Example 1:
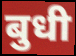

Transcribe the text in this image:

बुधी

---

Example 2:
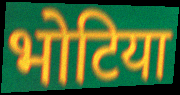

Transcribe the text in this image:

भोटिया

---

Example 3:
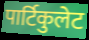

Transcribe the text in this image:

पार्टिकुलेट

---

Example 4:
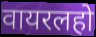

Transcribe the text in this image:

वायरलहो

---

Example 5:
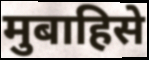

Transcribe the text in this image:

मुबाहिसे